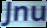
Jnu